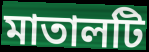
মাতালটি